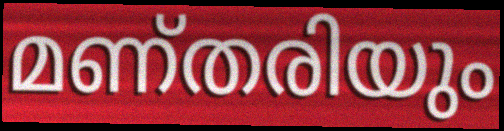
മണ്തരിയും